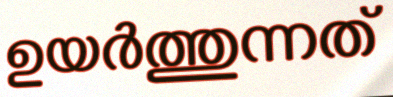
ഉയർത്തുന്നത്